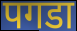
पगडा